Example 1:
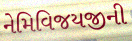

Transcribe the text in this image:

નેમિવિજયજીની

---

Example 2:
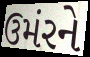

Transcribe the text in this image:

ઉમંરને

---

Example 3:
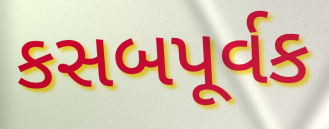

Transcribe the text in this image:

કસબપૂર્વક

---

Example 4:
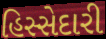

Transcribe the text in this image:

હિસ્સેદારી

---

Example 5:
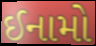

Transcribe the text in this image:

ઈનામો